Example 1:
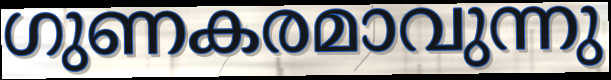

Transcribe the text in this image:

ഗുണകരമാവുന്നു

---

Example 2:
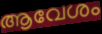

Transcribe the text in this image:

ആവേശം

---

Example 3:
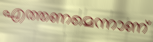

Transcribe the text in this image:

എത്തണമെന്നാണ്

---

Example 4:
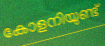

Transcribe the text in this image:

കോളനിയുണ്ട്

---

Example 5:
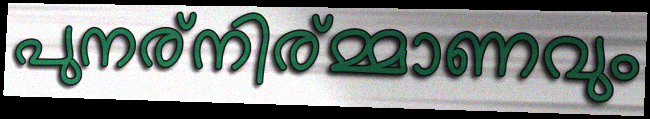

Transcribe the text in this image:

പുനര്നിര്മ്മാണവും